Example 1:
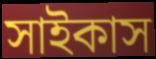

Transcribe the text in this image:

সাইকাস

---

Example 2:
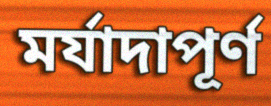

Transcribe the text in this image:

মর্যাদাপূর্ণ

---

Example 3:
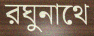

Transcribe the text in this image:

রঘুনাথে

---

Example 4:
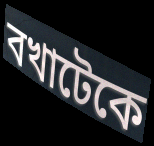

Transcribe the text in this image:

বখাটেকে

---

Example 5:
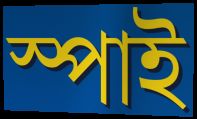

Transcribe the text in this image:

স্পাই